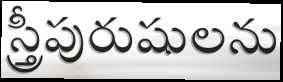
స్త్రీపురుషులను